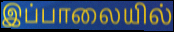
இப்பாலையில்